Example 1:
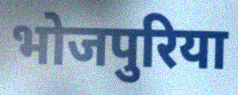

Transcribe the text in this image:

भोजपुरिया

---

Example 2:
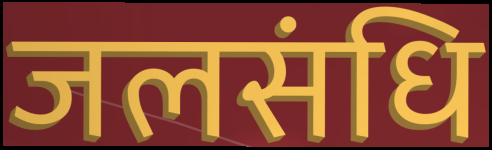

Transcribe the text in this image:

जलसंधि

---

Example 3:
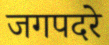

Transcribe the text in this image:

जगपदरे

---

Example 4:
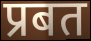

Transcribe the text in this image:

प्रबत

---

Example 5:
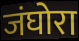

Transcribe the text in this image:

जंघोरा